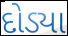
દોડ્યા